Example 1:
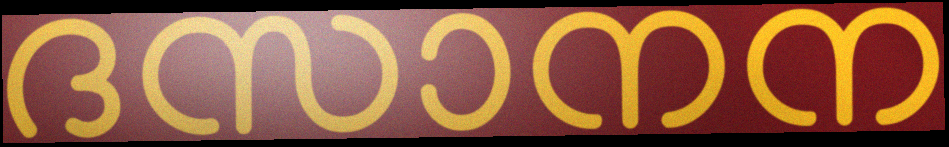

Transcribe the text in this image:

ദസാനന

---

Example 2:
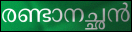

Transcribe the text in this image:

രണ്ടാനച്ഛൻ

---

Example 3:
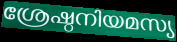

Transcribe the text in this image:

ശ്രേഷ്ഠനിയമസ്യ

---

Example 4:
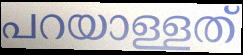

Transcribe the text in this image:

പറയാള്ളത്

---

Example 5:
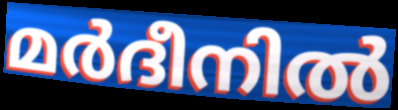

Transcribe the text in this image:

മർദീനിൽ